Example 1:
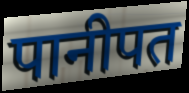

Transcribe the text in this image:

पानीपत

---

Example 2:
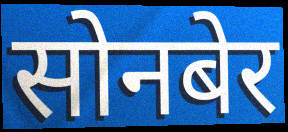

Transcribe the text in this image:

सोनबेर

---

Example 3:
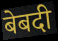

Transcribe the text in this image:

बेबदी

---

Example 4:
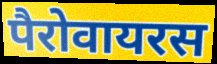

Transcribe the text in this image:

पैरोवायरस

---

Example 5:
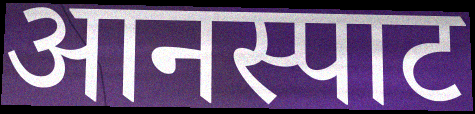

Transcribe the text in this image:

आनस्पाट